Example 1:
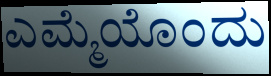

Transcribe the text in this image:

ಎಮ್ಮೆಯೊಂದು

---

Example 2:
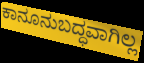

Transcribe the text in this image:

ಕಾನೂನುಬದ್ಧವಾಗಿಲ್ಲ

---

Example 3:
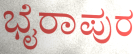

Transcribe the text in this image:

ಭೈರಾಪುರ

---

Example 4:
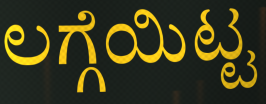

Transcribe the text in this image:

ಲಗ್ಗೆಯಿಟ್ಟ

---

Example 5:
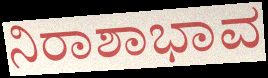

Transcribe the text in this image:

ನಿರಾಶಾಭಾವ